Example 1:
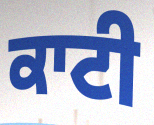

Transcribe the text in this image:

ਕਾਟੀ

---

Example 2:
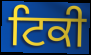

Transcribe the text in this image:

ਟਿਕੀ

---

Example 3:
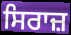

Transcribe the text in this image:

ਸਿਰਾਜ਼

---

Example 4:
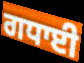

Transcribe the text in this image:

ਗਧਾਈ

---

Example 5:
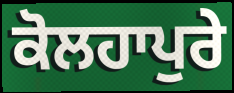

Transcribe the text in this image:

ਕੋਲਹਾਪੁਰੇ